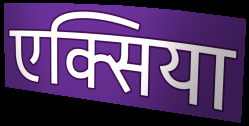
एक्सिया